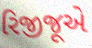
રિજીજૂએ